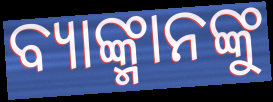
ବ୍ୟାଙ୍କ୍ମାନଙ୍କୁ